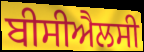
ਬੀਸੀਐਲਸੀ